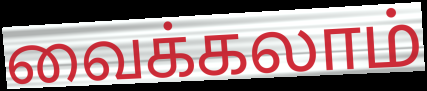
வைக்கலாம்